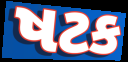
ષટક